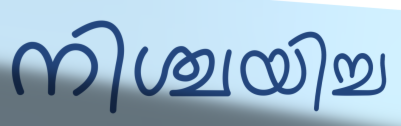
നിശ്ചയിച്ച